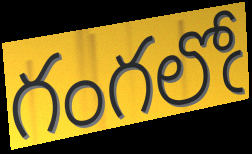
గంగలోఁ